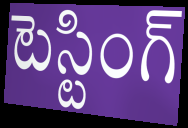
టెస్టింగ్